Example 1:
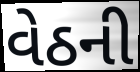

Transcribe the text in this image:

વેઠની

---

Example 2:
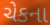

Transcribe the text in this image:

ચેકના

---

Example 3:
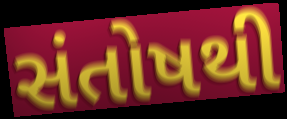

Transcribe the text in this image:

સંતોષથી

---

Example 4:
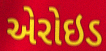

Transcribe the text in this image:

એરોઇડ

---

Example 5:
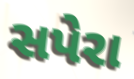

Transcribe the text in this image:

સપેરા